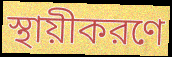
স্থায়ীকরণে